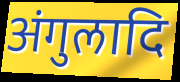
अंगुलादि